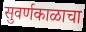
सुवर्णकाळाचा